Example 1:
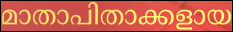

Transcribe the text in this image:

മാതാപിതാക്കളായ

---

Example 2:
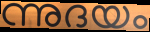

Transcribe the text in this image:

ന്നുദയം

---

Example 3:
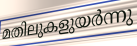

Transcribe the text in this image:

മതിലുകളുയർന്നു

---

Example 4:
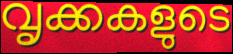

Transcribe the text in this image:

വൃക്കകളുടെ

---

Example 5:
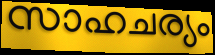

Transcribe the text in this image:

സാഹചര്യം